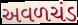
અવળચંડ